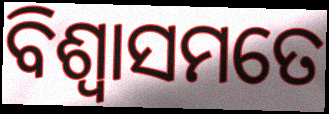
ବିଶ୍ୱାସମତେ